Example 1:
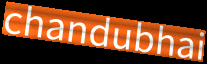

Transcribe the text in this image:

chandubhai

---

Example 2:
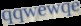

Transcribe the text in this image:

qqwewqe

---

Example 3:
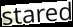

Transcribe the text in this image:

stared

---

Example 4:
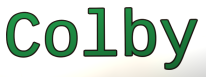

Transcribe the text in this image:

Colby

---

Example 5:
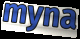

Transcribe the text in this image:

myna